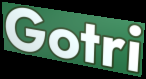
Gotri